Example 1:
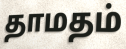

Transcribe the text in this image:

தாமதம்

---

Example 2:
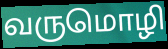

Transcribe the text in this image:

வருமொழி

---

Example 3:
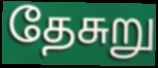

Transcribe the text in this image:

தேசுறு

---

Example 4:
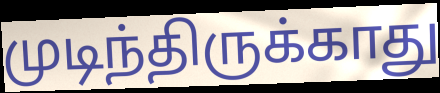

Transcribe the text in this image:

முடிந்திருக்காது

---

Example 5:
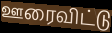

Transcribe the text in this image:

ஊரைவிட்டு